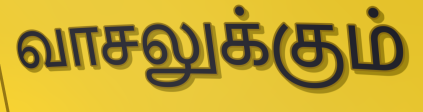
வாசலுக்கும்